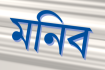
মনিব